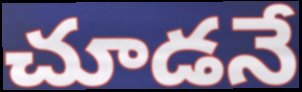
చూడనే